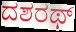
ದಶರಥ್